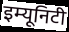
इम्यूनिटी